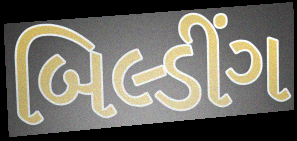
બિલ્ડીંગ